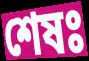
শেষঃ